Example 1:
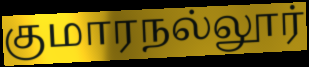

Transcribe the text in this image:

குமாரநல்லூர்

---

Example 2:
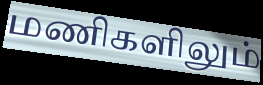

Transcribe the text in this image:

மணிகளிலும்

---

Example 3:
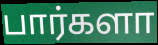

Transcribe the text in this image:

பார்களா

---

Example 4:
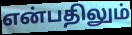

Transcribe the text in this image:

என்பதிலும்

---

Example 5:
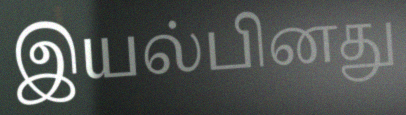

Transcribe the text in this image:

இயல்பினது